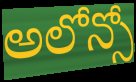
అలోన్సో